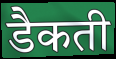
डैकती